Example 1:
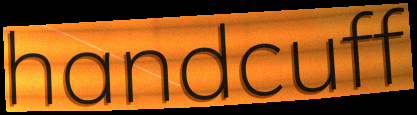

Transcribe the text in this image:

handcuff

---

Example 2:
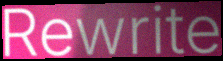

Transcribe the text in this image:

Rewrite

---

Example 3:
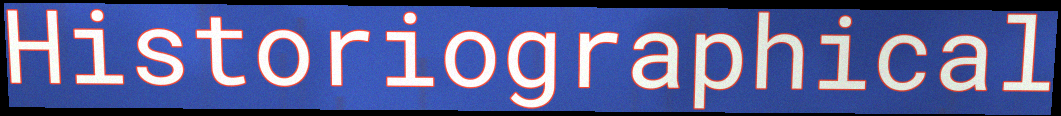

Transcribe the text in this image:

Historiographical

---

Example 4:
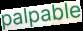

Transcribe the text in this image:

palpable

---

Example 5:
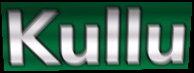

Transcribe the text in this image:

Kullu